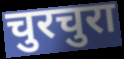
चुरचुरा